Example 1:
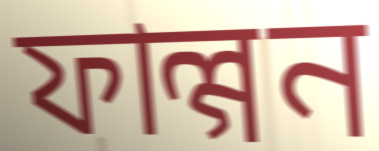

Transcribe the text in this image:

ফাল্গন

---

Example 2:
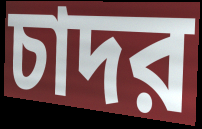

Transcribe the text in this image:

চাদর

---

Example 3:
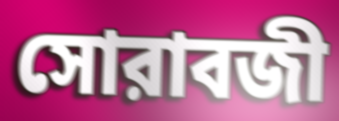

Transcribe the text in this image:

সোরাবজী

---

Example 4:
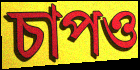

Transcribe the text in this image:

চাপও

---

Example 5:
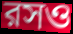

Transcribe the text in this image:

রসও